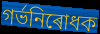
গৰ্ভনিৰোধক